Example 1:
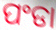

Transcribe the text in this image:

ପଂଡା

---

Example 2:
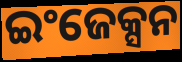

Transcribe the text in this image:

ଇଂଜେକ୍ସନ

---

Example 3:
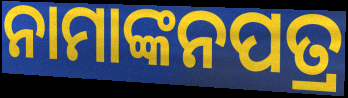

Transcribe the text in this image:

ନାମାଙ୍କନପତ୍ର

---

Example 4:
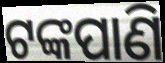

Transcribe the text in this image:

ଟଙ୍କପାଣି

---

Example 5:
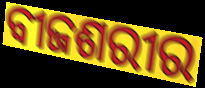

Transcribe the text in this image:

ବୀଜଶରୀର